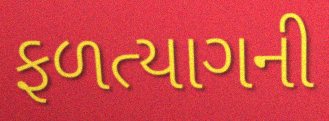
ફળત્યાગની